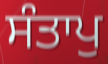
ਸੰਤਾਪੁ